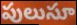
పులుసూ